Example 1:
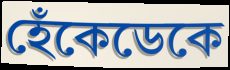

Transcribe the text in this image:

হেঁকেডেকে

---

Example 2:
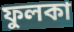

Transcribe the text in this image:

ফুলকা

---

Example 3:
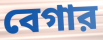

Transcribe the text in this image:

বেগার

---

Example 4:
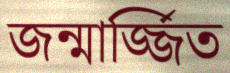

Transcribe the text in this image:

জন্মার্জ্জিত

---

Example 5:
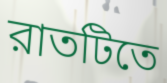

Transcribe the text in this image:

রাতটিতে